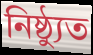
নিষ্ঠ্যুত